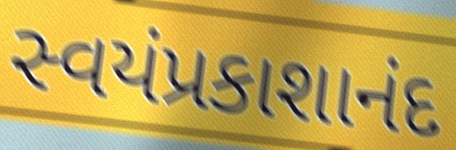
સ્વયંપ્રકાશાનંદ